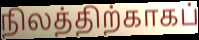
நிலத்திற்காகப்